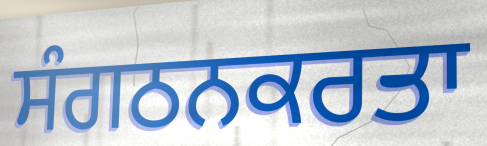
ਸੰਗਠਨਕਰਤਾ